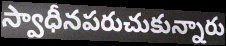
స్వాధీనపరుచుకున్నారు